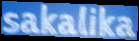
sakalika